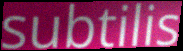
subtilis